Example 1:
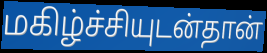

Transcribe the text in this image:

மகிழ்ச்சியுடன்தான்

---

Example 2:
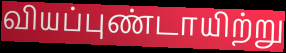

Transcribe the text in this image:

வியப்புண்டாயிற்று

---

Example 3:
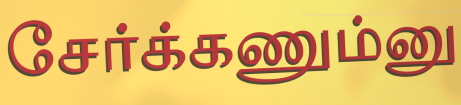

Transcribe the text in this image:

சேர்க்கணும்னு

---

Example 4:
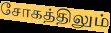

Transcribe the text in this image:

சோகத்திலும்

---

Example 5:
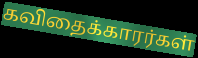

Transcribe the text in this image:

கவிதைக்காரர்கள்